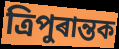
ত্ৰিপুৰান্তক